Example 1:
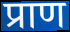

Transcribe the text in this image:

प्राण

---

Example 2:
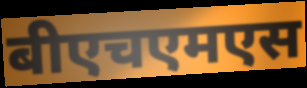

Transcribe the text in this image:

बीएचएमएस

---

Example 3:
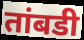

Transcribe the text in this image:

तांबडी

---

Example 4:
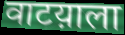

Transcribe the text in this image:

वाटय़ाला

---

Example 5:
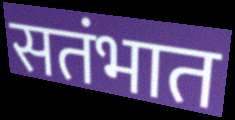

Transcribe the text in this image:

सतंभात